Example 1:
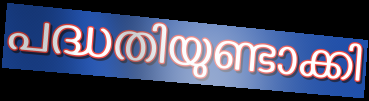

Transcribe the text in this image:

പദ്ധതിയുണ്ടാക്കി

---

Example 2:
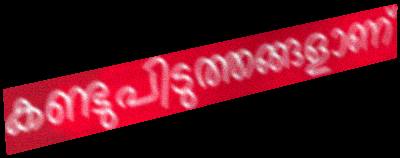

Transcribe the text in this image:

കണ്ടുപിടുത്തങ്ങളാണ്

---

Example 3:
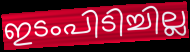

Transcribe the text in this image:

ഇടംപിടിച്ചില്ല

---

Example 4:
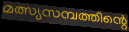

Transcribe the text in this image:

മത്സ്യസമ്പത്തിന്റെ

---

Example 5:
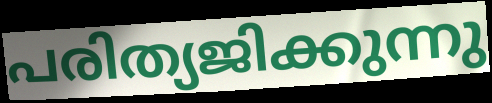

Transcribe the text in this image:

പരിത്യജിക്കുന്നു